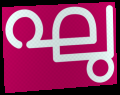
ഘു